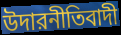
উদারনীতিবাদী